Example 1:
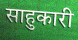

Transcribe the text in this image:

साहुकारी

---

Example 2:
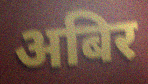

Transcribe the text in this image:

अबिर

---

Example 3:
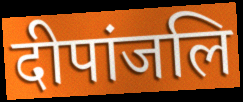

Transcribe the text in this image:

दीपांजलि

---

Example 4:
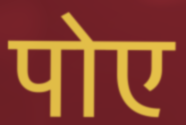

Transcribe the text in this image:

पोए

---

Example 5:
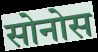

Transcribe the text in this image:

सोनोस